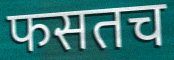
फसतच